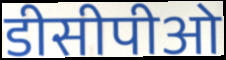
डीसीपीओ